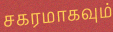
சகரமாகவும்